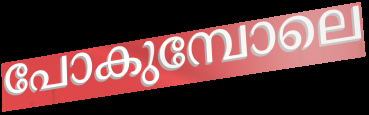
പോകുമ്പോലെ